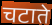
चटाते